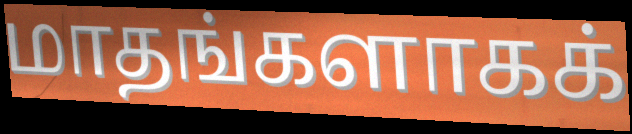
மாதங்களாகக்